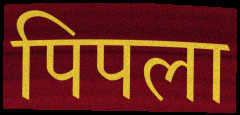
पिपला